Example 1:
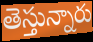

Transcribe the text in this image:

తెస్తున్నారు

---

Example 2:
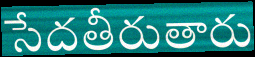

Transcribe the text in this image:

సేదతీరుతారు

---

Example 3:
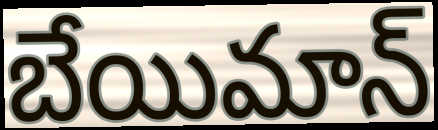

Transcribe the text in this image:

బేయిమాన్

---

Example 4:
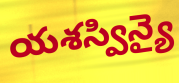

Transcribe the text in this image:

యశస్విన్యై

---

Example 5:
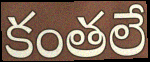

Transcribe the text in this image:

కంతలే